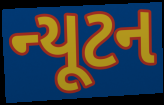
ન્યૂટન